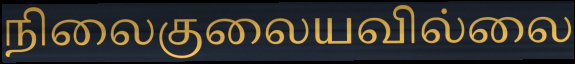
நிலைகுலையவில்லை